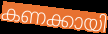
കണക്കായി